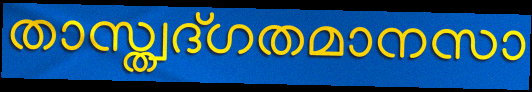
താസ്ത്വദ്ഗതമാനസാ